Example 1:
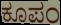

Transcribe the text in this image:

ಕೂಪಂ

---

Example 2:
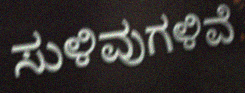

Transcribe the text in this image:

ಸುಳಿವುಗಳಿವೆ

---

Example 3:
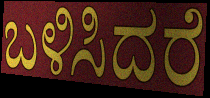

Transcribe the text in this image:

ಬಳಿಸಿದರೆ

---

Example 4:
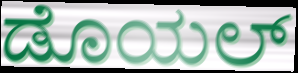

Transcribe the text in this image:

ಡೊಯಲ್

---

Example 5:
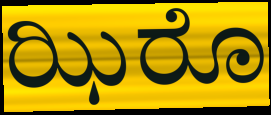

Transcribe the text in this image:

ಝಿರೊ